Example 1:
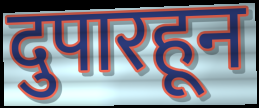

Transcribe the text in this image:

दुपारहून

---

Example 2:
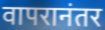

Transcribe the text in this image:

वापरानंतर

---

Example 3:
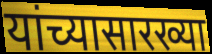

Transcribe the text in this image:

यांच्यासारख्या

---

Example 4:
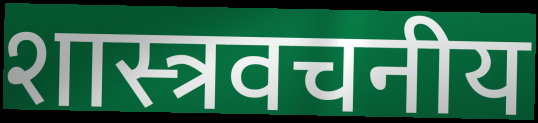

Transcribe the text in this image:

शास्त्रवचनीय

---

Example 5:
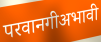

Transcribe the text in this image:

परवानगीअभावी